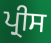
ਪ੍ਰੀਸ